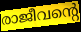
രാജീവന്റെ